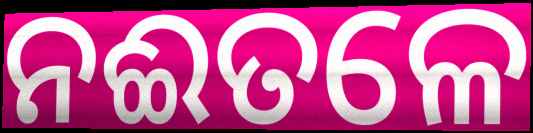
ନଈତଳେ